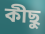
কীছু